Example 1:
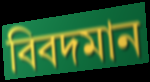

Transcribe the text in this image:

বিবদমান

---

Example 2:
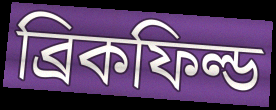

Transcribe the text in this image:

ব্রিকফিল্ড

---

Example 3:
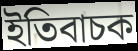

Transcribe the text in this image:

ইতিবাচক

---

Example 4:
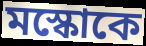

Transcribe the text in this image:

মস্কোকে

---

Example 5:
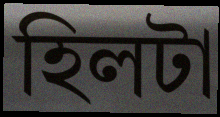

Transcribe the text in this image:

হিলটা